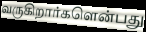
வருகிறார்களென்பது